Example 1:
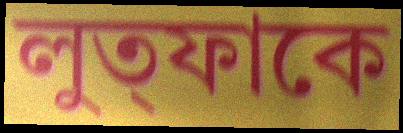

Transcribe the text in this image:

লুত্ফাকে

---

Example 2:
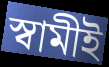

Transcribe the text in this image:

স্বামীই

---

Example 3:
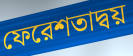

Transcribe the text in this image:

ফেরেশতাদ্বয়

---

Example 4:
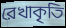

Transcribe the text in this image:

রেখাকৃতি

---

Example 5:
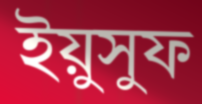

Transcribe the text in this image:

ইয়ুসুফ